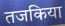
तजकिया